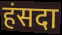
हंसदा